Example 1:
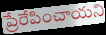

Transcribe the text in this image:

ప్రేరేపించాయని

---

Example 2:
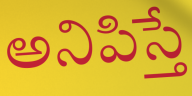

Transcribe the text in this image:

అనిపిస్తే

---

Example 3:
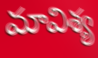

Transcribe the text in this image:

మావిశ్య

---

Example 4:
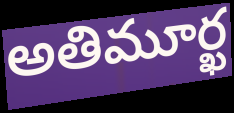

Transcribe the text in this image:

అతిమూర్ఖ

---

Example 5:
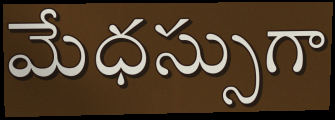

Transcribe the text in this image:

మేధస్సుగా